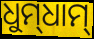
ଧୁମ୍‌ଧାମ୍